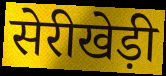
सेरीखेड़ी